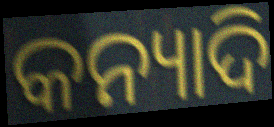
କନ୍ୟାଦି